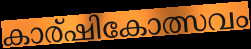
കാര്ഷികോത്സവം